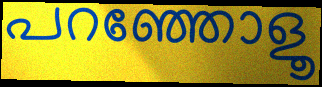
പറഞ്ഞോളൂ